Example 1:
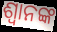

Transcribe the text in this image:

ଶ୍ବାନଙ୍କ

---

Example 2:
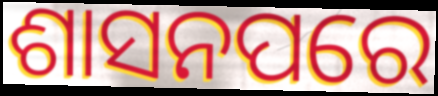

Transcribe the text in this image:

ଶାସନପରେ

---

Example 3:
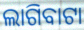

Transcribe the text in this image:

ଲାଗିବାଟା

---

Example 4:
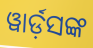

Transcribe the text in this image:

ୱାର୍ଡ଼ସଙ୍କ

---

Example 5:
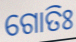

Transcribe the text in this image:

ଗୋତିଃ